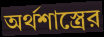
অর্থশাস্ত্রের